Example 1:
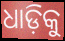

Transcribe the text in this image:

ଧାଡ଼ିକୁ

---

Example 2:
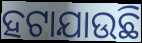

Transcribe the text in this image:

ହଟାଯାଉଛି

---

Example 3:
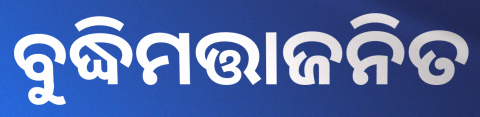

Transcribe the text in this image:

ବୁଦ୍ଧିମତ୍ତାଜନିତ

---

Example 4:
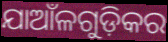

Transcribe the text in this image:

ଯାଆଁଳଗୁଡ଼ିକର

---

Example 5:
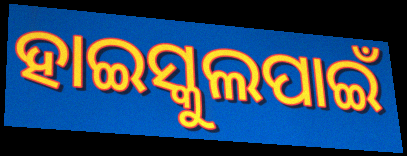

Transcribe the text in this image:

ହାଇସ୍କୁଲପାଇଁ